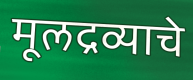
मूलद्रव्याचे